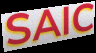
SAIC